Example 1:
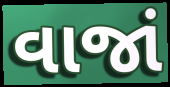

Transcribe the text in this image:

વાજાં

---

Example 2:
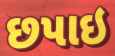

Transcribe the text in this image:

છપાઇ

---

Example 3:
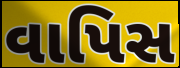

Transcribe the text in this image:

વાપિસ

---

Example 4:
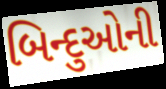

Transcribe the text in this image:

બિન્દુઓની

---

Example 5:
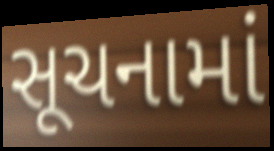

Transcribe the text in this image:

સૂચનામાં